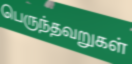
பெருந்தவறுகள்